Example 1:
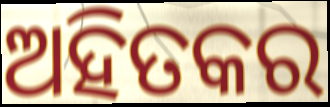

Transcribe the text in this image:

ଅହିତକର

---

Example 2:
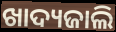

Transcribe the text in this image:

ଖାଦ୍ୟଜାଲି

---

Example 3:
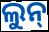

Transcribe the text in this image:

ଲୁନ୍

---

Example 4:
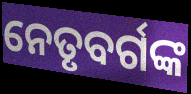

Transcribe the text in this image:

ନେତୃବର୍ଗଙ୍କ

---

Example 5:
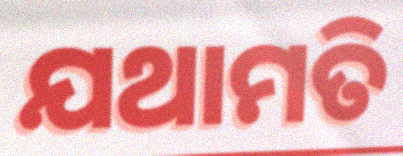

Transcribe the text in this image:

ଯଥାମତି